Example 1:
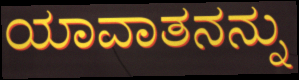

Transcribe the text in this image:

ಯಾವಾತನನ್ನು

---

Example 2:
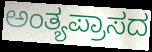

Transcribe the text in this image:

ಅಂತ್ಯಪ್ರಾಸದ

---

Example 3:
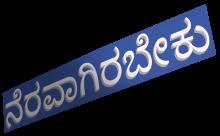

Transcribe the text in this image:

ನೆರವಾಗಿರಬೇಕು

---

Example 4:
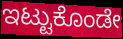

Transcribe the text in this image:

ಇಟ್ಟುಕೊಂಡೇ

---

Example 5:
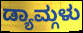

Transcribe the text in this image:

ಡ್ಯಾಮ್ಗಳು